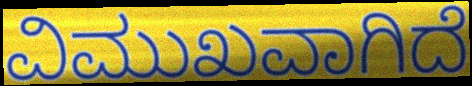
ವಿಮುಖವಾಗಿದೆ